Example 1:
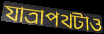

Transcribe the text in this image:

যাত্রাপথটাও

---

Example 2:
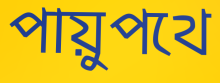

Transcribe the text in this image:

পায়ুপথে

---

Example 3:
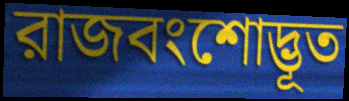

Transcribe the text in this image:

রাজবংশোদ্ভূত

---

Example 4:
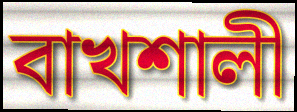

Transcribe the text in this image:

বাখশালী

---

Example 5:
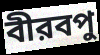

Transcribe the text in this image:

বীরবপু